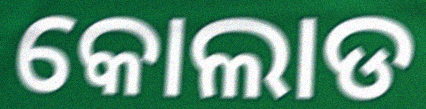
କୋଲାଡ